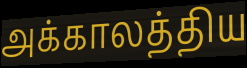
அக்காலத்திய